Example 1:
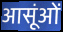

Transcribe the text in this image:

आसूंओं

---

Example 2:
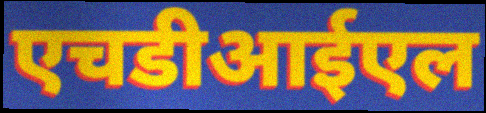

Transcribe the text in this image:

एचडीआईएल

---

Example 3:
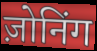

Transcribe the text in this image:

ज़ोनिंग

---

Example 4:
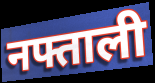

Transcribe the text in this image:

नफ्ताली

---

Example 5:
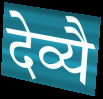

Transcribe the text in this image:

देव्यै